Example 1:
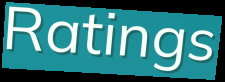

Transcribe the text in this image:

Ratings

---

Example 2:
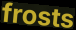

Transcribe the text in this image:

frosts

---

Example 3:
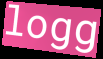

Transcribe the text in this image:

logg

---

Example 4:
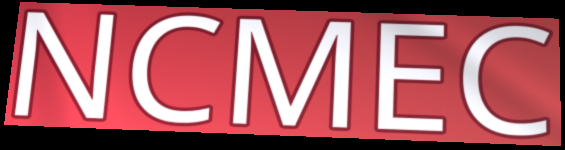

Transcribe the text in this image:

NCMEC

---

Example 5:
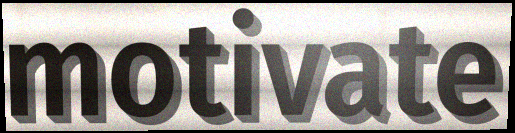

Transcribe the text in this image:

motivate